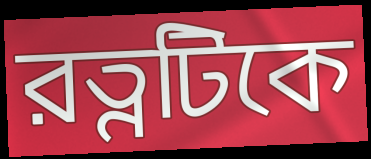
রত্নটিকে